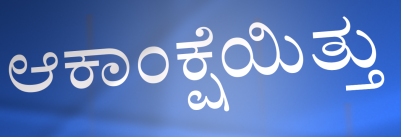
ಆಕಾಂಕ್ಷೆಯಿತ್ತು